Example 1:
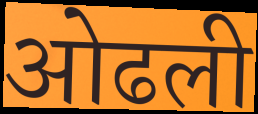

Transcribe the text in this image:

ओढली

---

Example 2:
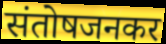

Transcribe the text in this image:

संतोषजनकर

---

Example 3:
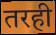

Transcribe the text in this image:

तरही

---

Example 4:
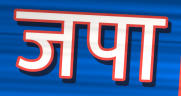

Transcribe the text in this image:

जपा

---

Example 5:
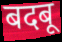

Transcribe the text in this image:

बदबू